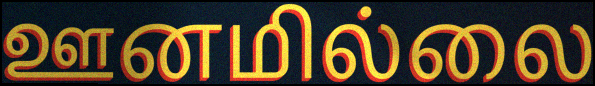
ஊனமில்லை